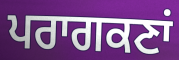
ਪਰਾਗਕਣਾਂ